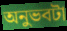
অনুভবটা